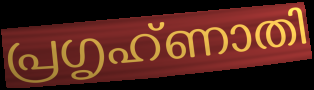
പ്രഗൃഹ്ണാതി